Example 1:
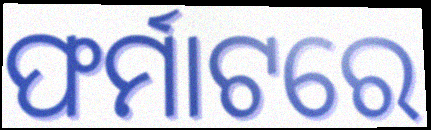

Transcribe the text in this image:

ଫର୍ମାଟରେ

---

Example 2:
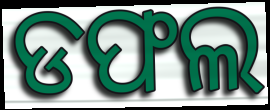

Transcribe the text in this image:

ଡଫଲ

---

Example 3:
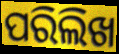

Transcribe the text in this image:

ପରିଲିଖ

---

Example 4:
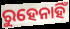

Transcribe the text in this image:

ରୁହେନାହିଁ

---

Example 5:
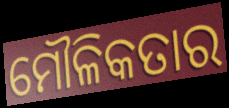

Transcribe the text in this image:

ମୌଳିକତାର